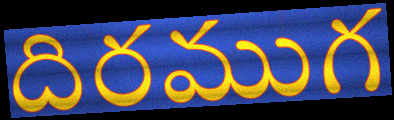
దిరముగ